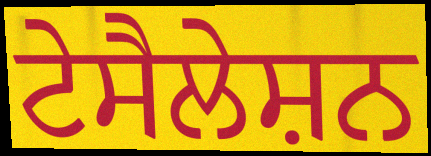
ਟੇਸੈਲੇਸ਼ਨ